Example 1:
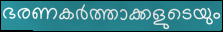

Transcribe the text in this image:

ഭരണകർത്താക്കളുടെയും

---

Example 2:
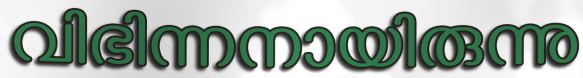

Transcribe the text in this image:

വിഭിന്നനായിരുന്നു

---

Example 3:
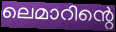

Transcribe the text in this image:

ലെമാറിന്റെ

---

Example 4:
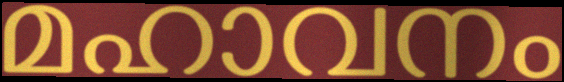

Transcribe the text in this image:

മഹാവനം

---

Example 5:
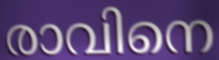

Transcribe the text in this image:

രാവിനെ